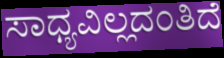
ಸಾಧ್ಯವಿಲ್ಲದಂತಿದೆ